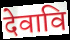
देवावि